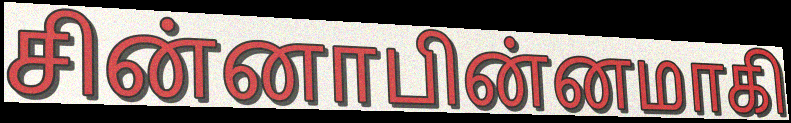
சின்னாபின்னமாகி